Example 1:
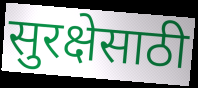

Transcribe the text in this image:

सुरक्षेसाठी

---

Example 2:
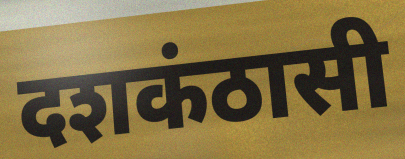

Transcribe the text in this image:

दशकंठासी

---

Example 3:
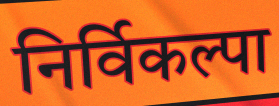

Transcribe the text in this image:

निर्विकल्पा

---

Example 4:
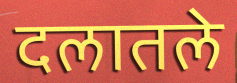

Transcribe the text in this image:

दलातले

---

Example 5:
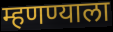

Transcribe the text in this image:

म्हणण्याला